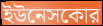
ইউনেসকোর